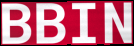
BBIN